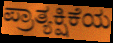
ಪ್ರಾತ್ಯಕ್ಷಿಕೆಯ